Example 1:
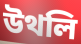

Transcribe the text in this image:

উথলি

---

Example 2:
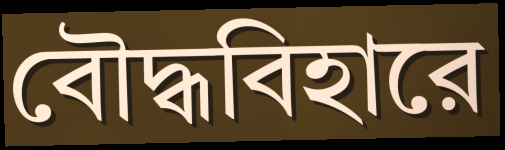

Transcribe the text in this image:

বৌদ্ধবিহারে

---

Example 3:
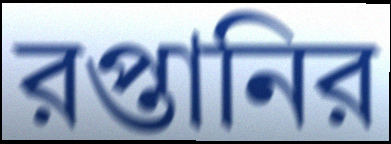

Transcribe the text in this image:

রপ্তানির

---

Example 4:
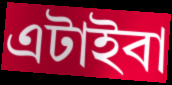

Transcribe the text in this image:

এটাইবা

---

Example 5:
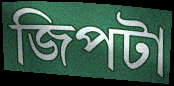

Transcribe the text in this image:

জিপটা